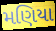
મણિયા